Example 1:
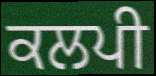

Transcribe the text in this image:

ਕਲਪੀ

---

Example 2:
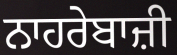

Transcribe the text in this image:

ਨਾਹਰੇਬਾਜ਼ੀ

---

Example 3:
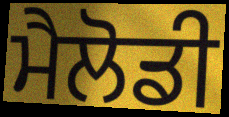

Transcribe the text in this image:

ਮੈਲੋਡੀ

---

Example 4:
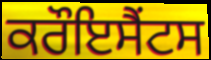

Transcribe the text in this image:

ਕਰੌਇਸੈਂਟਸ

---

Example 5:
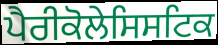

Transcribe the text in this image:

ਪੈਰੀਕੋਲੇਸਿਸਟਿਕ